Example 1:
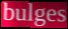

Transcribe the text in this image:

bulges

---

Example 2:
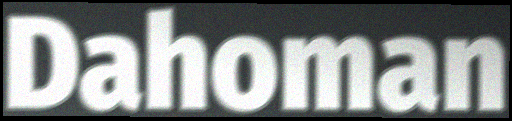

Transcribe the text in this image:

Dahoman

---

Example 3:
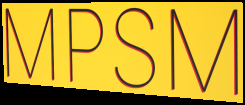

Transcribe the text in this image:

MPSM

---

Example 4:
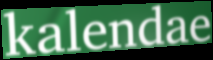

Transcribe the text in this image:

kalendae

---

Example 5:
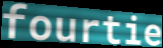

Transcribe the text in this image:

fourtie